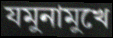
যমুনামুখে